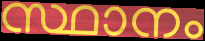
സ്ഥാനം